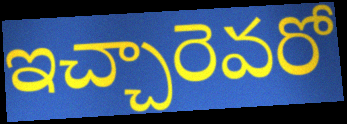
ఇచ్చారెవరో